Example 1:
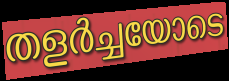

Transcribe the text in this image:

തളർച്ചയോടെ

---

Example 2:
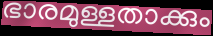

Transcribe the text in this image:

ഭാരമുള്ളതാക്കും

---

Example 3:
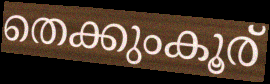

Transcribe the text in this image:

തെക്കുംകൂര്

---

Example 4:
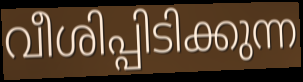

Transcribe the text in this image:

വീശിപ്പിടിക്കുന്ന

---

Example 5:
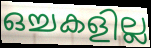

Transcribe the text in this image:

ഒച്ചകളില്ല